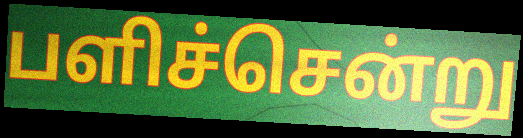
பளிச்சென்று